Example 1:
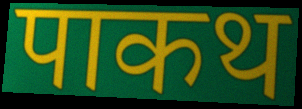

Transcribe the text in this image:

पाकथ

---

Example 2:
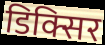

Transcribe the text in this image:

डिक्सिर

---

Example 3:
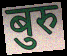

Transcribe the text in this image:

बुरु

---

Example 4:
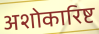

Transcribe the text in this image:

अशोकारिष्ट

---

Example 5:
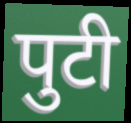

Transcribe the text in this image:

पुटी